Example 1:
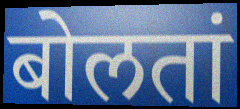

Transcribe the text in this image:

बोलतां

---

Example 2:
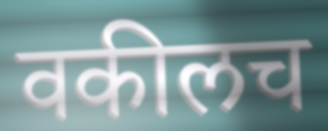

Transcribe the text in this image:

वकीलच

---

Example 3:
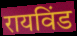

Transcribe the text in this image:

रायविंड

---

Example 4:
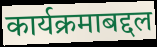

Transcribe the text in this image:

कार्यक्रमाबद्दल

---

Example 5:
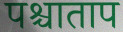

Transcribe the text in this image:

पश्चाताप